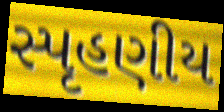
સ્પૃહણીય